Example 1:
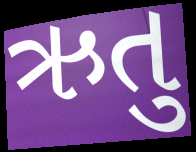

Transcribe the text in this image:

ઋતુ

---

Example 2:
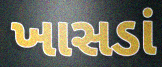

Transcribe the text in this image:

ખાસડાં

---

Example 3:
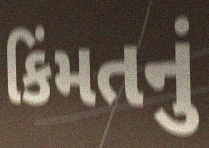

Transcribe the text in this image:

કિંમતનું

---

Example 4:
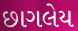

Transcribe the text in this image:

છાગલેય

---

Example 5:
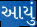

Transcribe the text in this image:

આયું